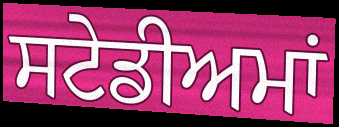
ਸਟੇਡੀਅਮਾਂ